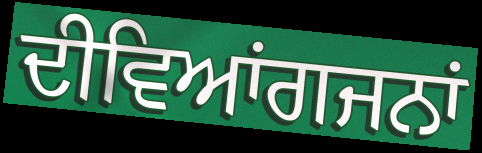
ਦੀਵਿਆਂਗਜਨਾਂ